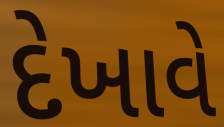
દેખાવે